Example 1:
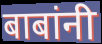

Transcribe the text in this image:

बाबांनी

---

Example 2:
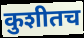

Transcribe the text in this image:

कुशीतच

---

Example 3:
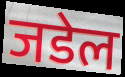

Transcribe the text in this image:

जडेल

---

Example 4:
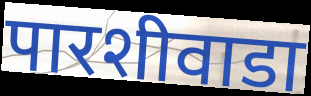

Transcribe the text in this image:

पारशीवाडा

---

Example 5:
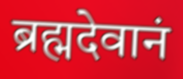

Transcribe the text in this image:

ब्रह्मदेवानं